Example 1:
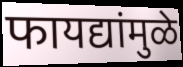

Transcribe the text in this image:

फायद्यांमुळे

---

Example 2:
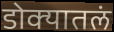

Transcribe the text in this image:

डोक्यातलं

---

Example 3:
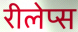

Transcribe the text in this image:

रीलेप्स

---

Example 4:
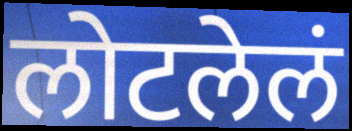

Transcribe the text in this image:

लोटलेलं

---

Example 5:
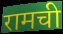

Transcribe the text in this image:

रामची